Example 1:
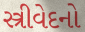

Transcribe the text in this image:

સ્ત્રીવેદનો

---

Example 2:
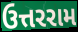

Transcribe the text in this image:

ઉત્તરરામ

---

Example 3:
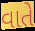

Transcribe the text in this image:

વાતે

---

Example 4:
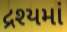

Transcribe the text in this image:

દ્રશ્યમાં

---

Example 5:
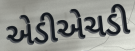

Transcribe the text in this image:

એડીએચડી